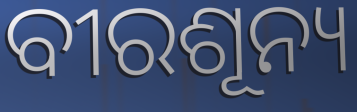
ବୀରଶୂନ୍ୟ